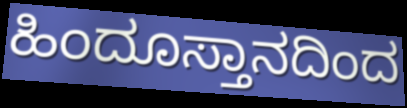
ಹಿಂದೂಸ್ತಾನದಿಂದ